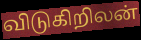
விடுகிறிலன்